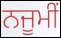
ਨਜੂਮੀਂ